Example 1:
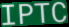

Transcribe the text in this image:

IPTC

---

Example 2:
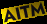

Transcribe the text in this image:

AITM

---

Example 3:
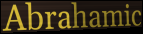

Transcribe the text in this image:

Abrahamic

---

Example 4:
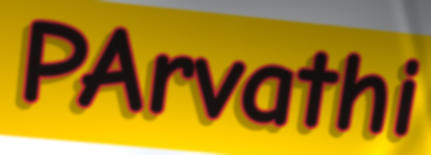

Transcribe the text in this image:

PArvathi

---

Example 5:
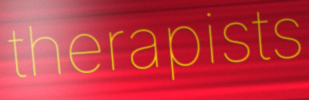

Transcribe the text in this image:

therapists